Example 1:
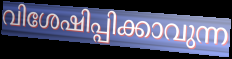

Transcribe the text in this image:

വിശേഷിപ്പിക്കാവുന്ന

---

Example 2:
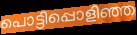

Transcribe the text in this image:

പൊട്ടിപ്പൊളിഞ്ഞ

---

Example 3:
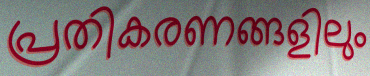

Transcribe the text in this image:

പ്രതികരണങ്ങളിലും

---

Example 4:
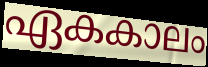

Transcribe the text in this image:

ഏകകാലം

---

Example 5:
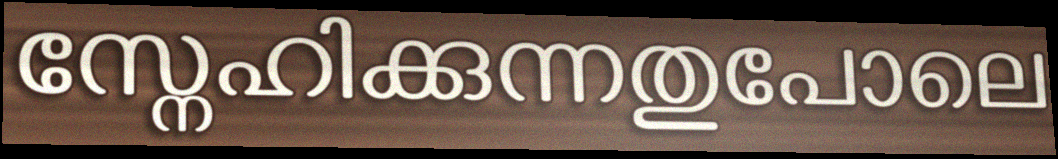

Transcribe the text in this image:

സ്നേഹിക്കുന്നതുപോലെ